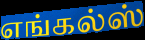
எங்கல்ஸ்